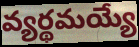
వ్యర్థమయ్యే